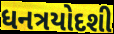
ધનત્રયોદશી